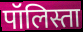
पॉलिस्ता